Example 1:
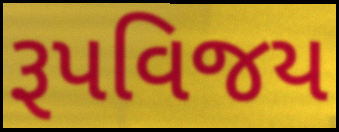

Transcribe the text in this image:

રૂપવિજય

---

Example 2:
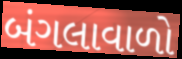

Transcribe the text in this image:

બંગલાવાળો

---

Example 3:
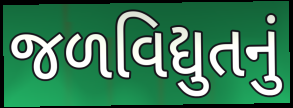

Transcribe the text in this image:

જળવિદ્યુતનું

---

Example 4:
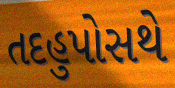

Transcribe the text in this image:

તદહુપોસથે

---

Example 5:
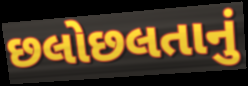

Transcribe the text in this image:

છલોછલતાનું